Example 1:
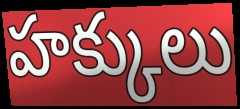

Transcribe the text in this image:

హక్కులు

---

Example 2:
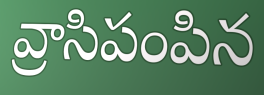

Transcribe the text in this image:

వ్రాసిపంపిన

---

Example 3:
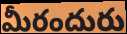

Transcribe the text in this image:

మీరందురు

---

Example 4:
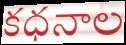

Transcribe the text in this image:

కధనాల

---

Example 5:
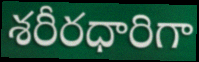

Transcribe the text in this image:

శరీరధారిగా